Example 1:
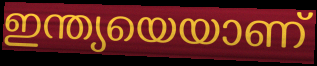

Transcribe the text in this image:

ഇന്ത്യയെയാണ്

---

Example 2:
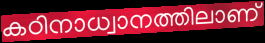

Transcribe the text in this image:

കഠിനാധ്വാനത്തിലാണ്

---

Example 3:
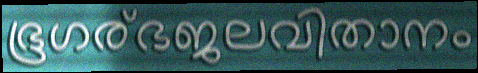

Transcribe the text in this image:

ഭൂഗര്ഭജലവിതാനം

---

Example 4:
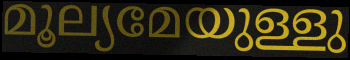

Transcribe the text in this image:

മൂല്യമേയുള്ളു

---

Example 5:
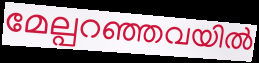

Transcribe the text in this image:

മേല്പറഞ്ഞവയിൽ